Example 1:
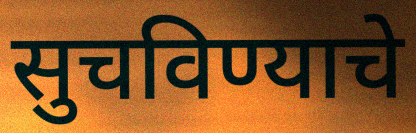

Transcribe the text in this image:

सुचविण्याचे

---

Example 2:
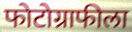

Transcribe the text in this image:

फोटोग्राफीला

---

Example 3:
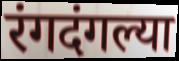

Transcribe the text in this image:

रंगदंगल्या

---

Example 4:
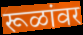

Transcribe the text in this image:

रूळांवर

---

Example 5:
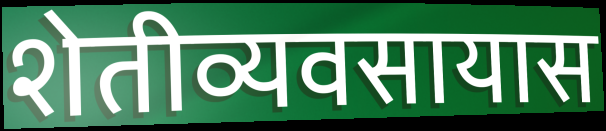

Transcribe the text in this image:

शेतीव्यवसायास